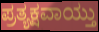
ಪ್ರತ್ಯಕ್ಷವಾಯ್ತು